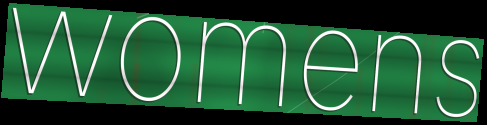
womens